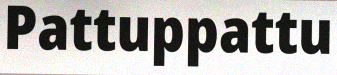
Pattuppattu